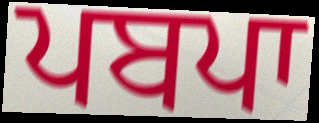
ਪਬਪਾ